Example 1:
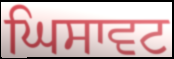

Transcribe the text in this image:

ਘਿਸਾਵਟ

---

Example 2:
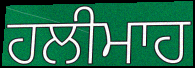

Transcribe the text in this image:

ਹਲੀਮਾਹ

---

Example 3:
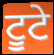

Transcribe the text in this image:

ਟੂਟੇ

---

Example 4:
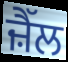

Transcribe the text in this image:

ਜ਼ੈੱਲ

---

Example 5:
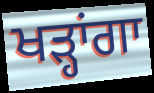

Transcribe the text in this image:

ਖੜ੍ਹਾਂਗਾ